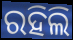
ରହିଲି